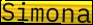
Simona